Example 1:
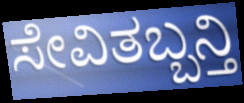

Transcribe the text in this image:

ಸೇವಿತಬ್ಬನ್ತಿ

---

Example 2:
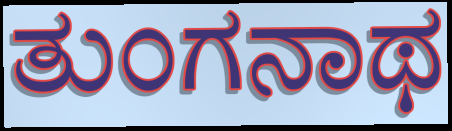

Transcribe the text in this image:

ತುಂಗನಾಥ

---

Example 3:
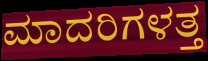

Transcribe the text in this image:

ಮಾದರಿಗಳತ್ತ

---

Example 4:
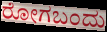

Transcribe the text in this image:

ರೋಗಬಂದು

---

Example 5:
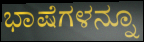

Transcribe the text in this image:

ಭಾಷೆಗಳನ್ನೂ